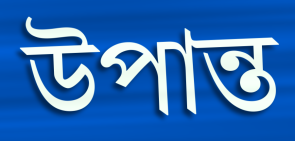
উপান্ত